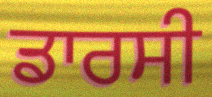
ਡਾਰਸੀ